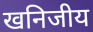
खनिजीय